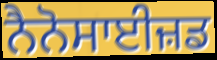
ਨੈਨੋਸਾਈਜ਼ਡ